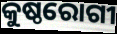
କୁଷ୍ଠରୋଗୀ